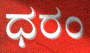
ಧರಂ